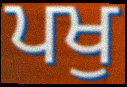
ਪਖੁ